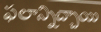
ఫలాన్నిచ్చాయి